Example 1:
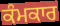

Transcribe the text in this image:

ਕੰਮਕਾਰ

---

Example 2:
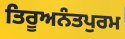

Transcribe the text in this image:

ਤਿਰੂਅਨੰਤਪੁਰਮ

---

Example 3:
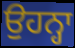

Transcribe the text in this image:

ਉਹਨ੍ਹਾ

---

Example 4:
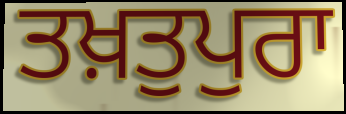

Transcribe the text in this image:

ਤਖ਼ਤੁਪੁਰਾ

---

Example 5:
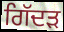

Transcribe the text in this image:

ਗਿੱਦਡ਼